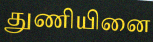
துணியினை